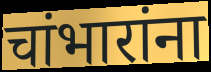
चांभारांना